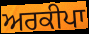
ਅਰਕੀਪਾ